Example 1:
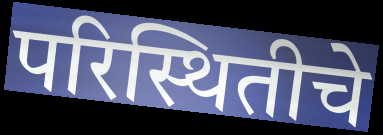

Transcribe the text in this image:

परिस्थितीचे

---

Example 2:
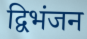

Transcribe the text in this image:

द्विभंजन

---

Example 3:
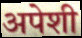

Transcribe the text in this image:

अपेशी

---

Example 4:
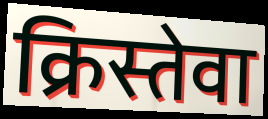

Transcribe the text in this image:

क्रिस्तेवा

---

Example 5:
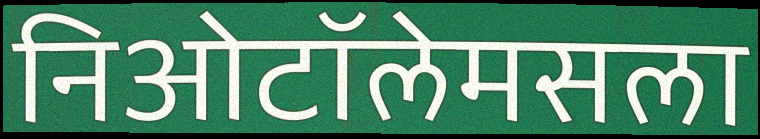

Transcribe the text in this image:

निओटॉलेमसला